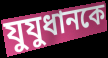
যুযুধানকে